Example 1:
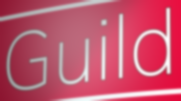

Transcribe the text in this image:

Guild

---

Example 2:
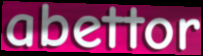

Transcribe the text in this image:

abettor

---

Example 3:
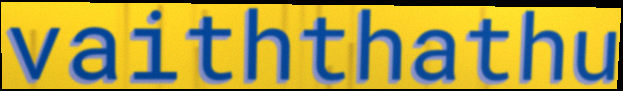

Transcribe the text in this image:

vaiththathu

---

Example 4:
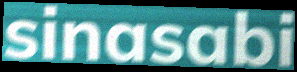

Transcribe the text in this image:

sinasabi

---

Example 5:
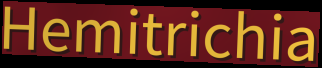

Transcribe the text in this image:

Hemitrichia